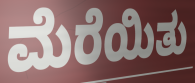
ಮೆರೆಯಿತು